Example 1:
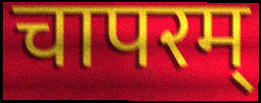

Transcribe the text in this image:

चापरम्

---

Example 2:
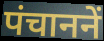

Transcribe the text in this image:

पंचाननें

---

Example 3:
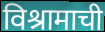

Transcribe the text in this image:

विश्रामाची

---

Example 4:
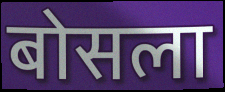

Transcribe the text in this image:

बोसला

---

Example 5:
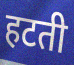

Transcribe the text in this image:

हटती